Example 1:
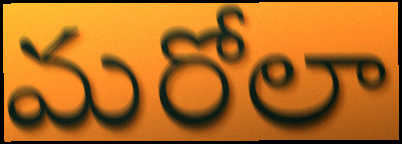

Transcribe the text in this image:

మరోలా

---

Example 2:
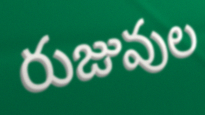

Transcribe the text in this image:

రుజువుల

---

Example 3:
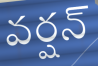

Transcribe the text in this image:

వర్షన్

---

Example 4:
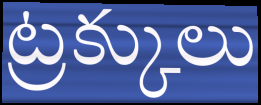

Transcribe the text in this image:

ట్రక్కులు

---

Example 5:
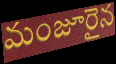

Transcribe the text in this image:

మంజూరైన